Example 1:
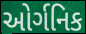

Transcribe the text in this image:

ઓર્ગનિક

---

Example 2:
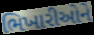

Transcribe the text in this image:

ભિખારીઓને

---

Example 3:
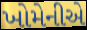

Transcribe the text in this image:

ખોમેનીએ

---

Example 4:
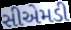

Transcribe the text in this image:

સીએમડી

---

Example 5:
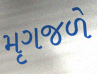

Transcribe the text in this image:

મૃગજળે